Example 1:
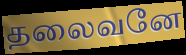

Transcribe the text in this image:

தலைவனே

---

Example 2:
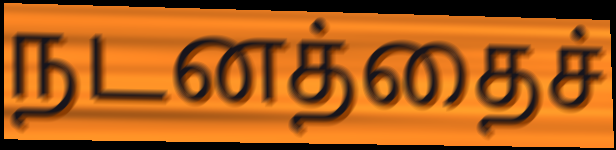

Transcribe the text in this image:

நடனத்தைச்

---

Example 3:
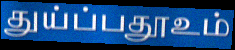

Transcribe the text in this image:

துய்ப்பதூஉம்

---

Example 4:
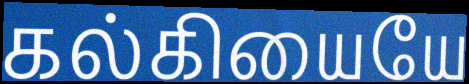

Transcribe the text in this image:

கல்கியையே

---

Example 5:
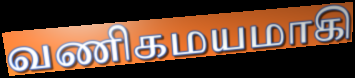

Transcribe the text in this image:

வணிகமயமாகி